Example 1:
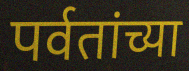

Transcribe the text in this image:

पर्वतांच्या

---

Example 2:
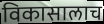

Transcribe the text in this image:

विकासालाच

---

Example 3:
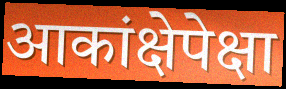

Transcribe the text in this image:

आकांक्षेपेक्षा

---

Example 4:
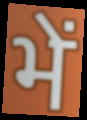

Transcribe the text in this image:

भें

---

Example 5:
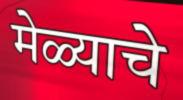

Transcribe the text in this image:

मेळ्याचे